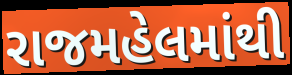
રાજમહેલમાંથી